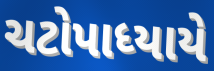
ચટોપાધ્યાયે